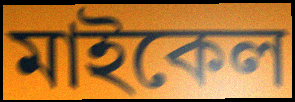
মাইকেল